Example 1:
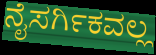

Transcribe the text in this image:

ನೈಸರ್ಗಿಕವಲ್ಲ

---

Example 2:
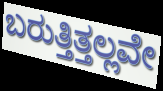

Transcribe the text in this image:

ಬರುತ್ತಿತ್ತಲ್ಲವೇ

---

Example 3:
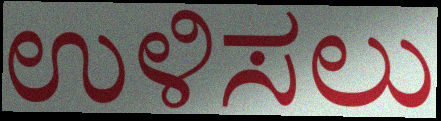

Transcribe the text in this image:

ಉಳಿಸಲು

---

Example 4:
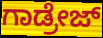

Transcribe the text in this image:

ಗಾಡ್ರೇಜ್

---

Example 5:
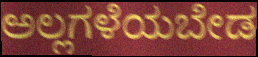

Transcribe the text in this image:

ಅಲ್ಲಗಳೆಯಬೇಡ